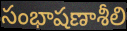
సంభాషణాశీలి